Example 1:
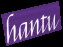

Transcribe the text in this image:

hantu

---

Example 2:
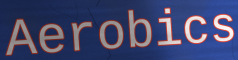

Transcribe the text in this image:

Aerobics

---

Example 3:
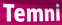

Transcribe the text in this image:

Temni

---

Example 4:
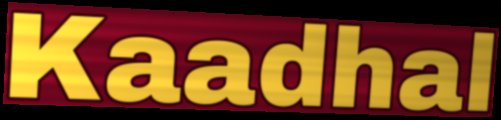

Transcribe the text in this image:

Kaadhal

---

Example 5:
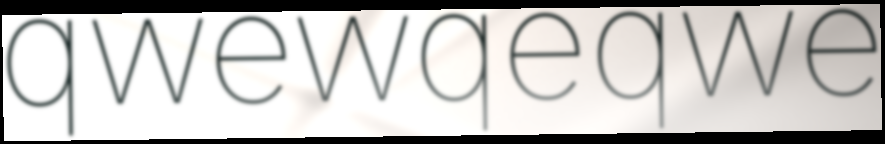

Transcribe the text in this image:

qwewqeqwe